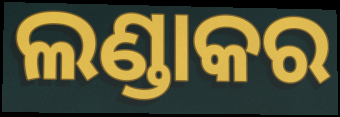
ଲଣ୍ଡାକର